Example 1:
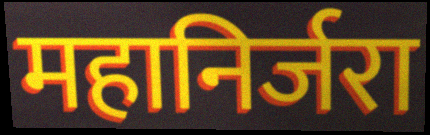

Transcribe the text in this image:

महानिर्जरा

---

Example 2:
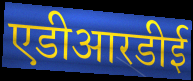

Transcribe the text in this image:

एडीआरडीई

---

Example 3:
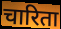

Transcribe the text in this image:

चारिता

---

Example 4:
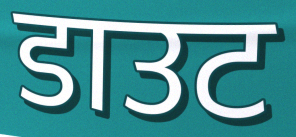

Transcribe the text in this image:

डाउट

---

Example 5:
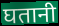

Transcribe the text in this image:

घतानी